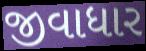
જીવાધાર